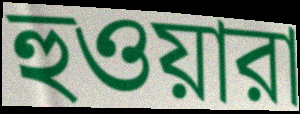
হুওয়ারা